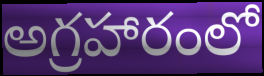
అగ్రహారంలో